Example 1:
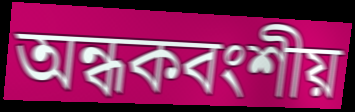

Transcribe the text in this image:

অন্ধকবংশীয়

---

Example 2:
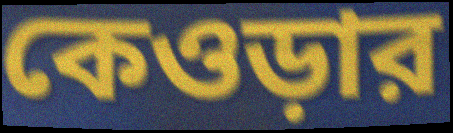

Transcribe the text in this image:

কেওড়ার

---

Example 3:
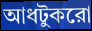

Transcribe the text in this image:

আধটুকরো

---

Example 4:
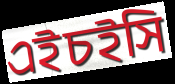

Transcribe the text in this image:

এইচইসি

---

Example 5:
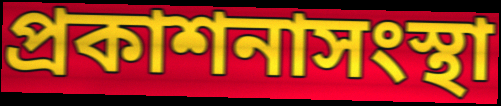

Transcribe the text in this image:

প্রকাশনাসংস্থা